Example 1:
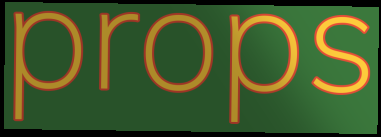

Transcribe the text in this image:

props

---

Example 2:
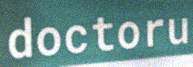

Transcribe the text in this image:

doctoru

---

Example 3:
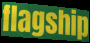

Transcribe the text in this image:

flagship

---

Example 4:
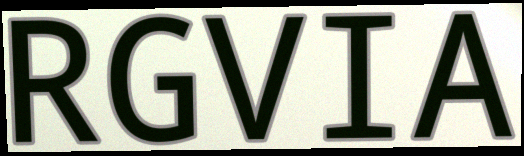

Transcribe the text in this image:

RGVIA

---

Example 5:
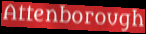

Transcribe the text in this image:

Attenborough